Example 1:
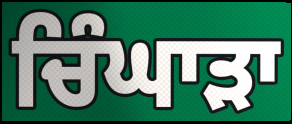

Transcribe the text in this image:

ਚਿੰਘਾੜਾ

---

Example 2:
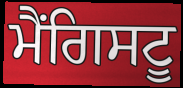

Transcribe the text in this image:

ਮੈਂਗਿਸਟੂ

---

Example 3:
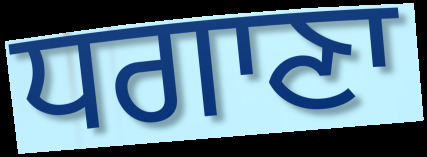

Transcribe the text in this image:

ਧਗਾਣਾ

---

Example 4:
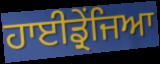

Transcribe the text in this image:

ਹਾਈਡ੍ਰੇਂਜਿਆ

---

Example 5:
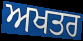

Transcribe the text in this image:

ਅਖਤਰ